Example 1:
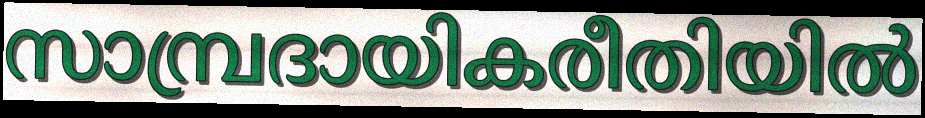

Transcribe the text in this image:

സാമ്പ്രദായികരീതിയിൽ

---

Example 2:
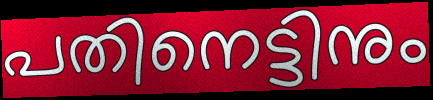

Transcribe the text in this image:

പതിനെട്ടിനും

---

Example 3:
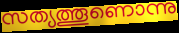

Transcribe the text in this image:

സത്യത്തൂണൊന്നു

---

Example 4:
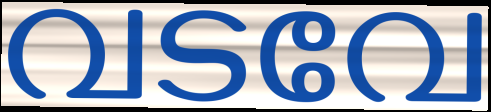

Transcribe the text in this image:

വടവേ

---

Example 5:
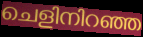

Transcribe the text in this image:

ചെളിനിറഞ്ഞ